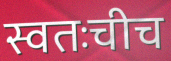
स्वतःचीच